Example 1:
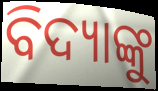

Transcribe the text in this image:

ବିଦ୍ୟାଙ୍କୁ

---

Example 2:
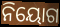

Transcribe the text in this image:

ନିୟୋଗ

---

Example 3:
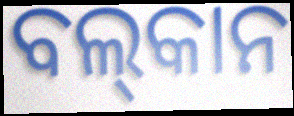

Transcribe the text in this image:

ବଲ୍‌କାନ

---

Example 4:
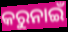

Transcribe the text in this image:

କରୁନାଇଁ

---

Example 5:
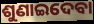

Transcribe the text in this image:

ଶୁଣାଇଦେବା